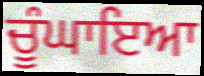
ਚੂੰਘਾਇਆ